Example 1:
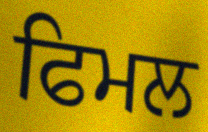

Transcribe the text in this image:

ਫਿਮਲ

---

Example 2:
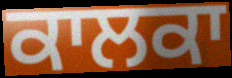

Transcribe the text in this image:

ਕਾਲਕਾ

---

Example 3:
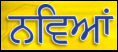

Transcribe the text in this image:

ਨਵਿਆਂ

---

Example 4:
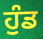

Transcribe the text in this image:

ਹੁੰਡ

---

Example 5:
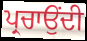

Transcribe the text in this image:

ਪ੍ਰਚਾਉਂਦੀ